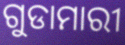
ଗୁଡାମାରୀ